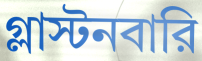
গ্লাস্টনবারি